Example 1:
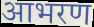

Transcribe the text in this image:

आभरण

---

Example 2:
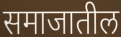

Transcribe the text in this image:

समाजातील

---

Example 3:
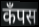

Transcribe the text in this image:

कॅंपस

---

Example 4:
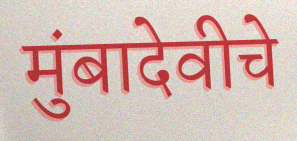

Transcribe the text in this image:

मुंबादेवीचे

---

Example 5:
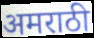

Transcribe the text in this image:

अमराठी